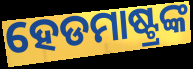
ହେଡମାଷ୍ଟ୍ରଙ୍କ